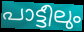
പാട്ടീലും